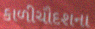
કાળીચૌદશના